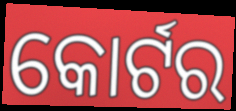
କୋର୍ଟର